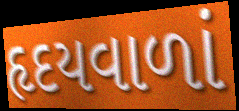
હૃદયવાળાં